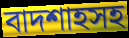
বাদশাহসহ